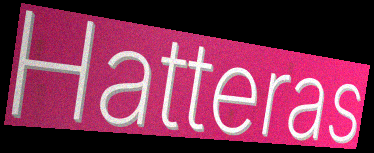
Hatteras